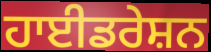
ਹਾਈਡਰੇਸ਼ਨ